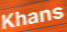
Khans